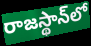
రాజస్థాన్‌లో